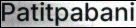
Patitpabani